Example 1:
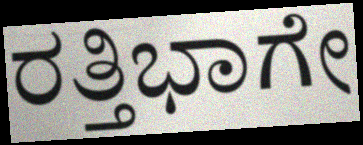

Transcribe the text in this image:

ರತ್ತಿಭಾಗೇ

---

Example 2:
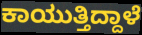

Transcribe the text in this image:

ಕಾಯುತ್ತಿದ್ದಾಳೆ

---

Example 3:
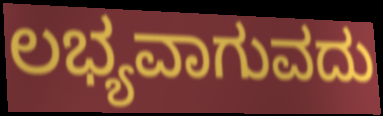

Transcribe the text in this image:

ಲಭ್ಯವಾಗುವದು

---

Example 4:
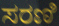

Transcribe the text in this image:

ಸರಣಿ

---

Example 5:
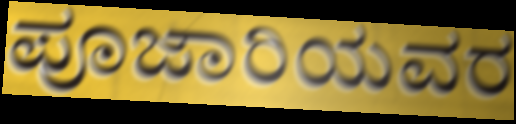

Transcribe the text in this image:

ಪೂಜಾರಿಯವರ